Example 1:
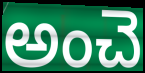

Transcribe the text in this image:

అంచె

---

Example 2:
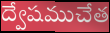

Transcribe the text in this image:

ద్వేషముచేత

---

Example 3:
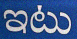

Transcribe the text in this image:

ఇటు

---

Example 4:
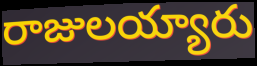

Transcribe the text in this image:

రాజులయ్యారు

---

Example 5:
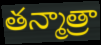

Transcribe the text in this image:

తన్మాత్రా